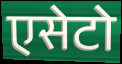
एसेटो